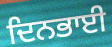
ਦਿਨਭਾਈ